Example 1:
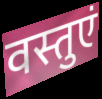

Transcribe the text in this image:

वस्तुएं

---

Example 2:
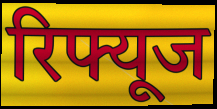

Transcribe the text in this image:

रिफ्यूज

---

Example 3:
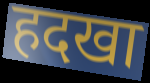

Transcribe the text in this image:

हदखा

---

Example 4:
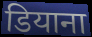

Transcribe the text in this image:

डियाना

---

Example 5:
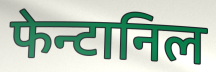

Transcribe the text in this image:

फेन्टानिल